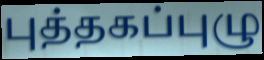
புத்தகப்புழு